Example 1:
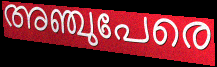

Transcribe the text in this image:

അഞ്ചുപേരെ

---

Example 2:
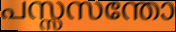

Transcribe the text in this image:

പസ്സസന്തോ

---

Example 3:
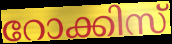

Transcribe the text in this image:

റോക്കിസ്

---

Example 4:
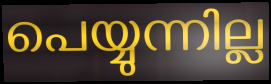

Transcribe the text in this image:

പെയ്യുന്നില്ല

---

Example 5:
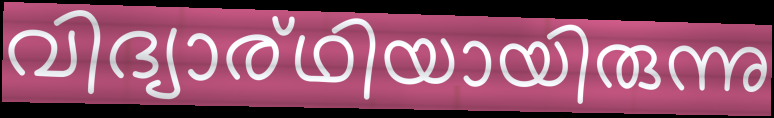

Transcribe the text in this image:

വിദ്യാര്ഥിയായിരുന്നു